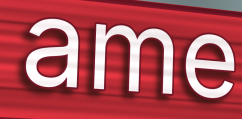
ame